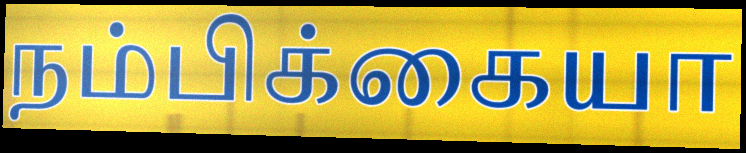
நம்பிக்கையா